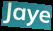
Jaye